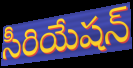
సీరియేషన్